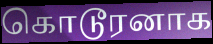
கொடூரனாக